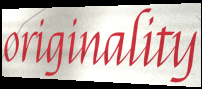
originality